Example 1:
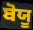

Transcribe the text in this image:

ਬੋਯੂ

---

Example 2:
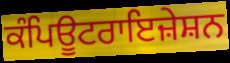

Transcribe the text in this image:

ਕੰਪਿਊਟਰਾਇਜ਼ੇਸ਼ਨ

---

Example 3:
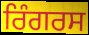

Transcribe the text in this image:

ਰਿੰਗਰਸ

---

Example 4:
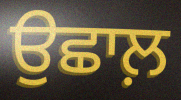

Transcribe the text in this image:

ਉਛਾਲ਼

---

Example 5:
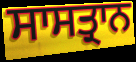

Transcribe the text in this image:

ਸਾਸਤ੍ਰਾਨ